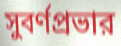
সুবর্ণপ্রভার